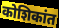
कोशिकांत